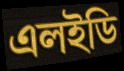
এলইডি